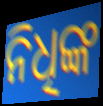
ନିଧିଙ୍କ